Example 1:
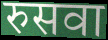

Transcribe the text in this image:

रुसवा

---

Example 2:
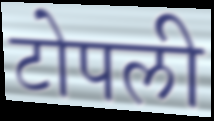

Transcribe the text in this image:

टोपली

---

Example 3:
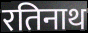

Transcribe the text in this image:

रतिनाथ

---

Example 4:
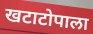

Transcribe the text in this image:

खटाटोपाला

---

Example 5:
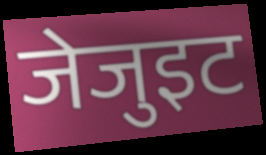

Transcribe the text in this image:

जेजुइट